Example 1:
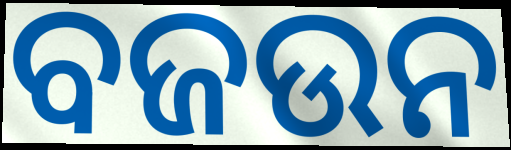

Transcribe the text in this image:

ବଜଉନ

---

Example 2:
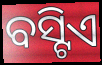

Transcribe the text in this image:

ବସ୍ଟିଏ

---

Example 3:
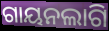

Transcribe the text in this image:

ଗାୟନଲାଗି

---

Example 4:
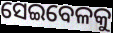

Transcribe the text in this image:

ସେଇବେଳକୁ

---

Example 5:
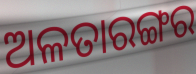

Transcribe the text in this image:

ଅଳତାରଙ୍ଗର